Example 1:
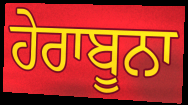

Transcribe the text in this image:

ਹੇਰਾਬੂਨਾ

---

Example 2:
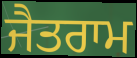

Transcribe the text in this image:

ਜੈਤਰਾਮ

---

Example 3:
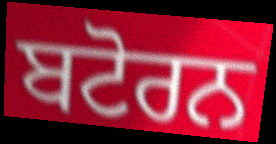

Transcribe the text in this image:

ਬਟੋਰਨ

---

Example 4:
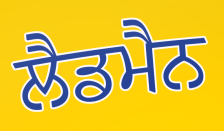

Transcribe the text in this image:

ਲੈਡਮੈਨ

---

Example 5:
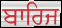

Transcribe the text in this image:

ਬਾਰਿਜ